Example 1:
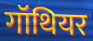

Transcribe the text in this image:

गॉथियर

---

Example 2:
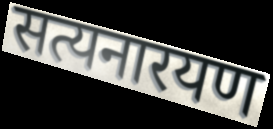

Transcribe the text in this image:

सत्यनारयण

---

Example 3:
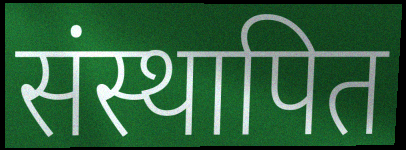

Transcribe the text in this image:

संस्थापित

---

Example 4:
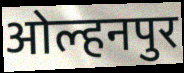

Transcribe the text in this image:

ओल्हनपुर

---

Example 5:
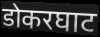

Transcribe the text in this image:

डोकरघाट